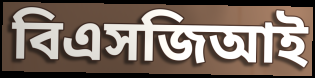
বিএসজিআই